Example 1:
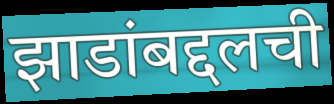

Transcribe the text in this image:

झाडांबद्दलची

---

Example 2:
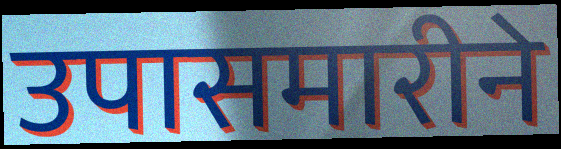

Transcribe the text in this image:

उपासमारीने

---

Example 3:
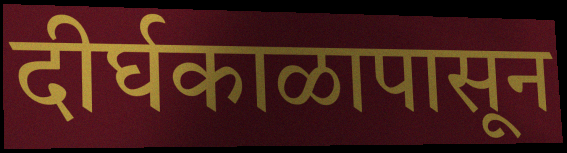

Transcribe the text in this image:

दीर्घकाळापासून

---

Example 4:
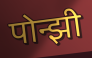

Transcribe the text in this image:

पोन्झी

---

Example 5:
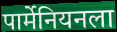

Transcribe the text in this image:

पार्मेनियनला